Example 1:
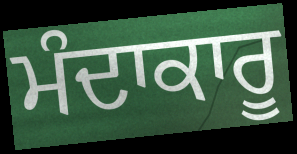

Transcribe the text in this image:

ਮੰਦਾਕਾਰੂ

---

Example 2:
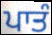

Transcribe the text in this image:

ਪਾਤੰ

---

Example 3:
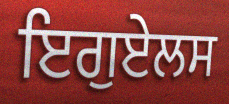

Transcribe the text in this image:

ਇਗੁਏਲਸ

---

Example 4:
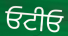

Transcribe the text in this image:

ਓਟੀਓ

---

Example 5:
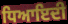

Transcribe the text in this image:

ਧਿਆਇਦੀ